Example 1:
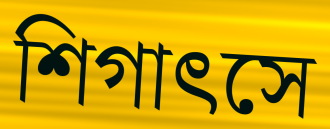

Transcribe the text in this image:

শিগাৎসে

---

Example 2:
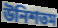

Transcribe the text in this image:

উনিশতম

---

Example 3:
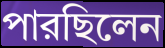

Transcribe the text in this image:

পারছিলেন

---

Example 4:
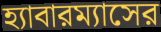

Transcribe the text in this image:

হ্যাবারম্যাসের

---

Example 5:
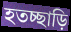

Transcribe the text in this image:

হতচ্ছাড়ি